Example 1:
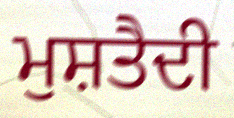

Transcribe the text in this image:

ਮੁਸ਼ਤੈਦੀ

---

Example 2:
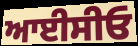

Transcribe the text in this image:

ਆਈਸੀਓ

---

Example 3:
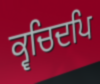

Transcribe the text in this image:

ਕ੍ਵਚਿਦਪਿ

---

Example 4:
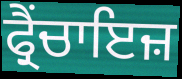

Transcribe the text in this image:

ਫ੍ਰੈਂਚਾਇਜ਼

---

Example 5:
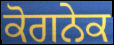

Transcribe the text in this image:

ਕੋਗਨੇਕ